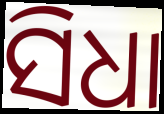
ସିଧା